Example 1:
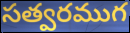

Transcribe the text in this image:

సత్వరముగ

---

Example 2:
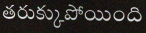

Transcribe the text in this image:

తరుక్కుపోయింది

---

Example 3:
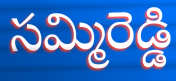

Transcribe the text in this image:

సమ్మిరెడ్డి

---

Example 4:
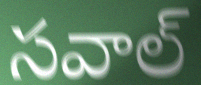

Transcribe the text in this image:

సవాల్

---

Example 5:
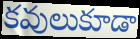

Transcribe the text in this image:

కవులుకూడా